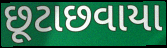
છૂટાછવાયા